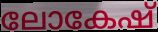
ലോകേഷ്